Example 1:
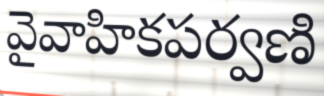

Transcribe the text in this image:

వైవాహికపర్వణి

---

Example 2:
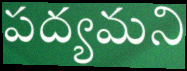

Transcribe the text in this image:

పద్యమని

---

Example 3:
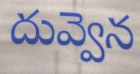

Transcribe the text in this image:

దువ్వెన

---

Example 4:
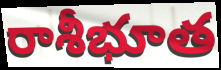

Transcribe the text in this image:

రాశీభూత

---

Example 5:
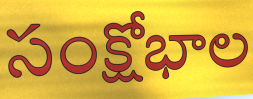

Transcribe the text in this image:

సంక్షోభాల